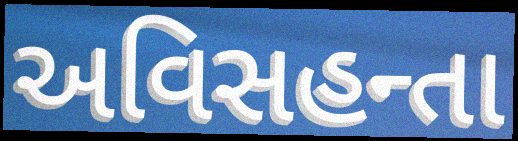
અવિસહન્તા